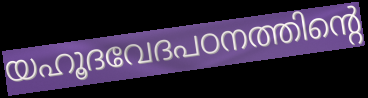
യഹൂദവേദപഠനത്തിന്റെ